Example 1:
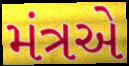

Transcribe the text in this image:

મંત્રએ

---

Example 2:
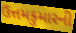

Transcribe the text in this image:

ઉત્તમકુમારની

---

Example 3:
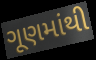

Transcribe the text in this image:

ગૂણમાંથી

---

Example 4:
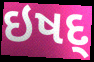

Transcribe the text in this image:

ઇષદ્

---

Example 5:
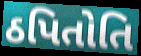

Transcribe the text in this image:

ઠપિતોતિ